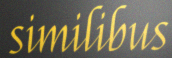
similibus